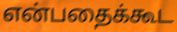
என்பதைக்கூட